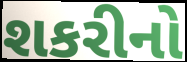
શકરીનો